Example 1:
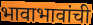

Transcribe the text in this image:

भावाभावांची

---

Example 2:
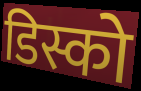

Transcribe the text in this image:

डिस्को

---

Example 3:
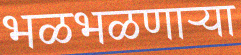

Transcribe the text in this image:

भळभळणाऱ्या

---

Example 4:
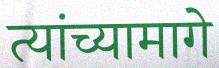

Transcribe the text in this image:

त्यांच्यामागे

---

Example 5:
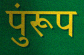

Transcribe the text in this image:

पुंरूप